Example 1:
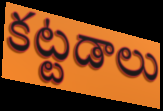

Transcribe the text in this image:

కట్టడాలు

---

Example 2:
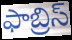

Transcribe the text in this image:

ఫాబ్రిస్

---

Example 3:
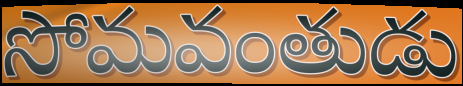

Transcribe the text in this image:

సోమవంతుడు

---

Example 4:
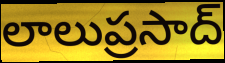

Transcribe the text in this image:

లాలుప్రసాద్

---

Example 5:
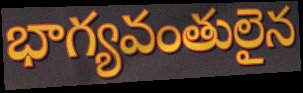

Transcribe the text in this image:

భాగ్యవంతులైన